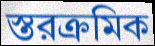
স্তরক্রমিক